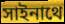
সাইনাথে